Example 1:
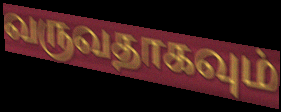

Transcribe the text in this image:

வருவதாகவும்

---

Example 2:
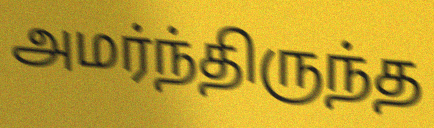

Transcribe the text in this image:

அமர்ந்திருந்த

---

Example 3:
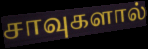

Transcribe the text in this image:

சாவுகளால்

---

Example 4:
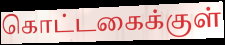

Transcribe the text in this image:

கொட்டகைக்குள்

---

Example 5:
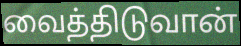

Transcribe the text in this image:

வைத்திடுவான்